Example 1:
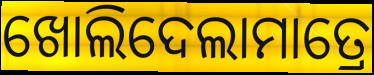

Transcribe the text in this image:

ଖୋଲିଦେଲାମାତ୍ରେ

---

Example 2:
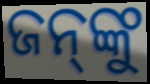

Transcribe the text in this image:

ଜନ୍‍ଙ୍କୁ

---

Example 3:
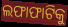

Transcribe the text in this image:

ଲଫାଫାଟିକୁ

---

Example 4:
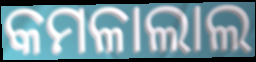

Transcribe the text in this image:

କମଳାଲାଲ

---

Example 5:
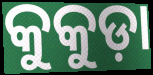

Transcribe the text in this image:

କୁକୁଡ଼ା